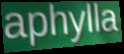
aphylla